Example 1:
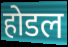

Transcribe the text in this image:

होडल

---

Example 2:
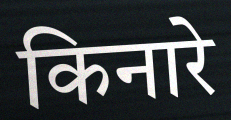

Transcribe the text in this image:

किनारे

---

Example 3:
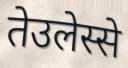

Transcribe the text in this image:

तेउलेस्से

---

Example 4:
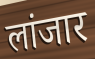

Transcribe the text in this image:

लांजार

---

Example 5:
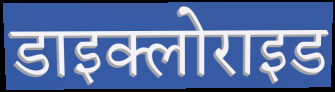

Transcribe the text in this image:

डाइक्लोराइड